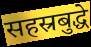
सहस्रबुद्धे